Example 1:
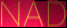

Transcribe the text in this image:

NAD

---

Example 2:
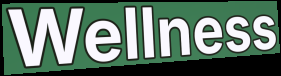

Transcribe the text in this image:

Wellness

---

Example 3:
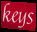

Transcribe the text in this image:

keys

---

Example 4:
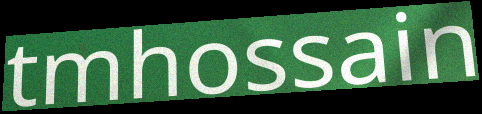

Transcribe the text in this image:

tmhossain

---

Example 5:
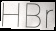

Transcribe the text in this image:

HBr